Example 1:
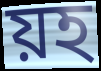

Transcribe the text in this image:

য়হ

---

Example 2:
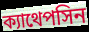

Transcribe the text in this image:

ক্যাথেপসিন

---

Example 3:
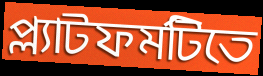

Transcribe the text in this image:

প্ল্যাটফর্মটিতে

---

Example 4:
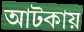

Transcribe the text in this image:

আটকায়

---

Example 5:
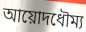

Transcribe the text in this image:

আয়োদধৌম্য